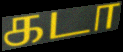
கடா